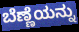
ಬೆಣ್ಣೆಯನ್ನು